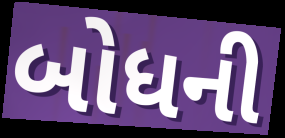
બોધની